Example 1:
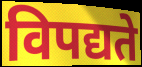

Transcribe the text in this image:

विपद्यते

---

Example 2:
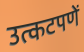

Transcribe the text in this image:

उत्कटपणें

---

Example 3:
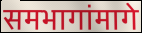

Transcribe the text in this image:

समभागांमागे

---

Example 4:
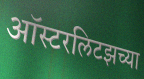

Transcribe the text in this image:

ऑस्टरलिटझच्या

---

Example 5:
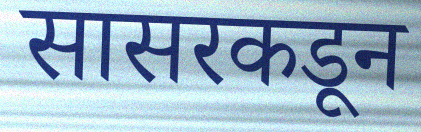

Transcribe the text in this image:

सासरकडून